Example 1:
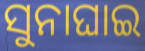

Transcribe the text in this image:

ସୁନାଘାଇ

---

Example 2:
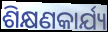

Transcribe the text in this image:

ଶିକ୍ଷଣକାର୍ଯ୍ୟ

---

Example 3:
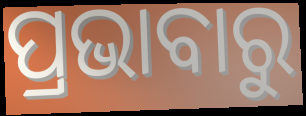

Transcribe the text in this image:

ପ୍ରଭାବାରୁ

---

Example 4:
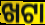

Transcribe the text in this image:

ଖଟା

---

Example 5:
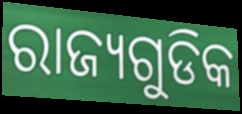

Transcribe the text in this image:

ରାଜ୍ୟଗୁଡିକ